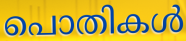
പൊതികൾ